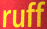
ruff